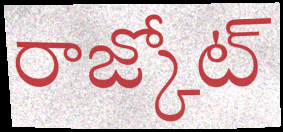
రాజ్కోట్